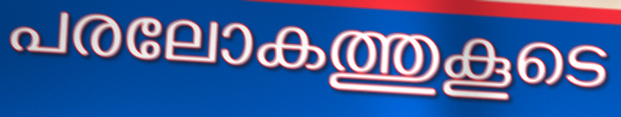
പരലോകത്തുകൂടെ